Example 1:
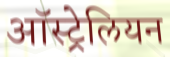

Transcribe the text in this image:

ऑस्ट्रेलियन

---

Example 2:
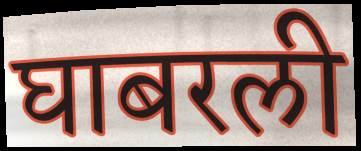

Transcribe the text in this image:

घाबरली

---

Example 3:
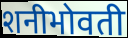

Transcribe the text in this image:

शनीभोवती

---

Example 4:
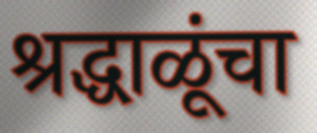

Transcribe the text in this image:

श्रद्धाळूंचा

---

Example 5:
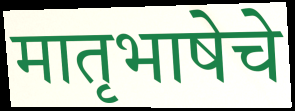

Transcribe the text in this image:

मातृभाषेचे